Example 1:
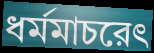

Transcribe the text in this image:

ধর্মমাচরেৎ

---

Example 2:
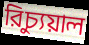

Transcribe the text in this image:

রিচ্যুয়াল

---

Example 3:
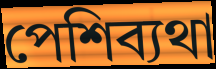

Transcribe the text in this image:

পেশিব্যথা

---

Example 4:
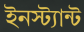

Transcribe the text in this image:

ইনস্ট্যান্ট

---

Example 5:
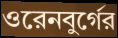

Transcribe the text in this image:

ওরেনবুর্গের